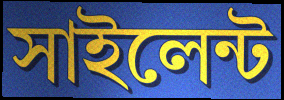
সাইলেন্ট